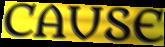
CAUSE